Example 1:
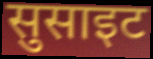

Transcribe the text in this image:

सुसाइट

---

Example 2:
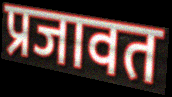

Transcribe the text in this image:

प्रजावत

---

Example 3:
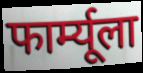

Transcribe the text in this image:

फार्म्यूला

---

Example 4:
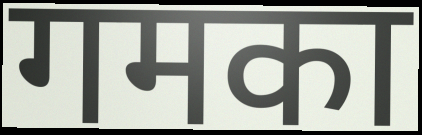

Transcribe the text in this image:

गमका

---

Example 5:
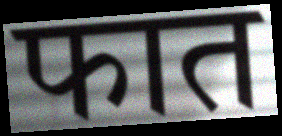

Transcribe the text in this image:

फात